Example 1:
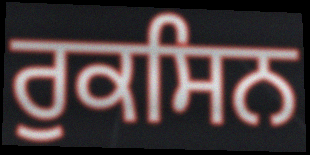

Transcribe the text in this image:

ਰੁਕਸਿਨ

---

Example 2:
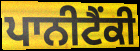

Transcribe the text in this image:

ਪਾਨੀਟੈਂਕੀ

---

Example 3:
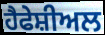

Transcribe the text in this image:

ਹੈਫੇਸ਼ੀਅਲ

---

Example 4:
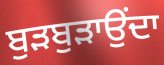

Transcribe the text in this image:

ਬੁੜਬੁੜਾਉਂਦਾ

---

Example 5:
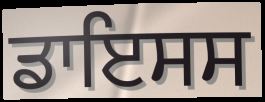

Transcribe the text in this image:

ਡਾਇਸਸ